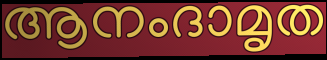
ആനംദാമൃത